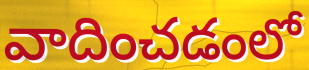
వాదించడంలో